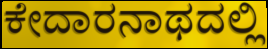
ಕೇದಾರನಾಥದಲ್ಲಿ